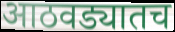
आठवड्यातच